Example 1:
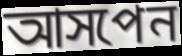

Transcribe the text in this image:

আসপেন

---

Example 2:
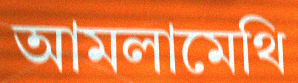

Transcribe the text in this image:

আমলামেথি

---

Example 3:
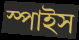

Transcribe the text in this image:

স্পাইস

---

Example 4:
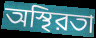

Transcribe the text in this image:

অস্থিরতা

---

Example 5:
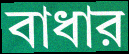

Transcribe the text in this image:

বাধার